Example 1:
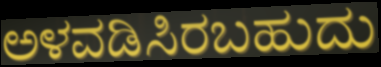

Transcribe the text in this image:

ಅಳವಡಿಸಿರಬಹುದು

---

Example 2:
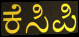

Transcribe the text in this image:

ಕೆಸಿಪಿ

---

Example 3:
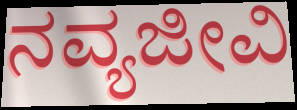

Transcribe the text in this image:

ನವ್ಯಜೀವಿ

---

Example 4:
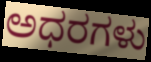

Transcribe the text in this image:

ಅಧರಗಳು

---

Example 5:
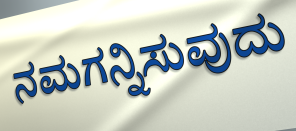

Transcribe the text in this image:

ನಮಗನ್ನಿಸುವುದು